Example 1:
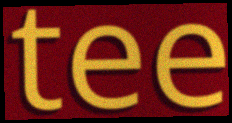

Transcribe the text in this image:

tee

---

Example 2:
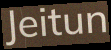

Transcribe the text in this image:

Jeitun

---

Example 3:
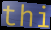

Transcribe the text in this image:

thi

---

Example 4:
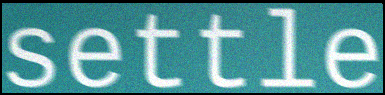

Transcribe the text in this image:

settle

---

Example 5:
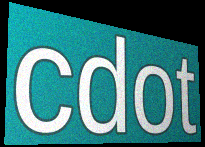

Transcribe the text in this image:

cdot